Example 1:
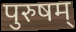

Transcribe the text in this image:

पुरुषम्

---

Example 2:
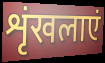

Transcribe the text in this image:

शृंखलाएं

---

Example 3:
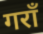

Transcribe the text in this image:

गराँ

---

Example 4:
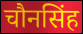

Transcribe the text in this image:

चौनसिंह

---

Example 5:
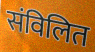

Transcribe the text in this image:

संविलित